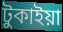
টুকাইয়া